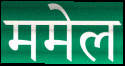
ममेल